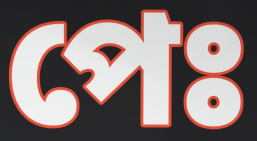
পেঃ